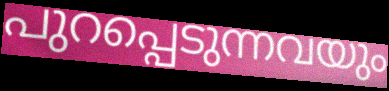
പുറപ്പെടുന്നവയും